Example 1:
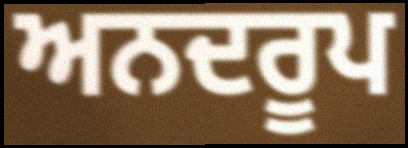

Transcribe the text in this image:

ਅਨਦਰੂਪ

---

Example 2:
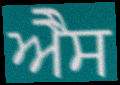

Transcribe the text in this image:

ਐੈਸ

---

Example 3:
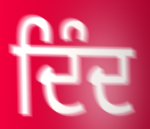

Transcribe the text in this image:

ਦਿੰਦ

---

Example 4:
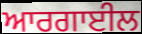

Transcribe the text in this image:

ਆਰਗਾਈਲ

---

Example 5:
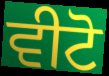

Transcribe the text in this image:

ਵੀਟੋ